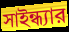
সাইন্ধ্যার